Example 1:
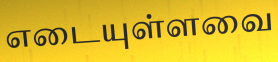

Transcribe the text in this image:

எடையுள்ளவை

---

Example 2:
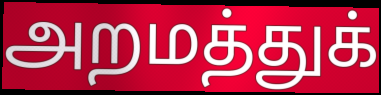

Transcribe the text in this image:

அறமத்துக்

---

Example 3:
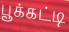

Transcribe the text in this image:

பூக்கட்டி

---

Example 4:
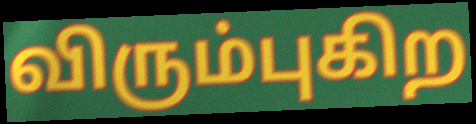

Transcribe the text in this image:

விரும்புகிற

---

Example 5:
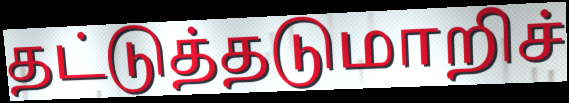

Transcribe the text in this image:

தட்டுத்தடுமாறிச்